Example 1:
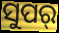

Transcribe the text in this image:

ସୁପର୍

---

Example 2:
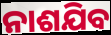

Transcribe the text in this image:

ନାଶଯିବ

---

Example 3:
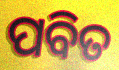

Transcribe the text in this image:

ପବିତ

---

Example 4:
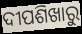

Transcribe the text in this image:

ଦୀପଶିଖାରୁ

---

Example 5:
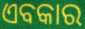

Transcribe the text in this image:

ଏବକାର